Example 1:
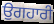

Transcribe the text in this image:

ਉਗਹਾਰੀ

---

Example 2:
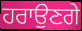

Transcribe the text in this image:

ਹਰਾਉਣਗੇ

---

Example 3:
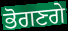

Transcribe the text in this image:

ਭੋਗਣਗੇ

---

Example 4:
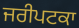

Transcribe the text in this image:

ਜਰੀਪਟਕਾ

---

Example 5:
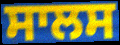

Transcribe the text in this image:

ਸਾਲਸ